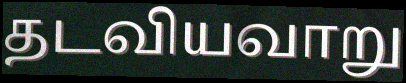
தடவியவாறு